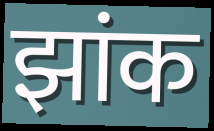
झांक